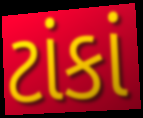
ટાંકાં